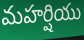
మహర్షియు